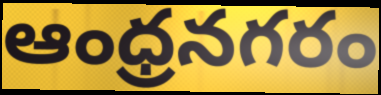
ఆంధ్రనగరం